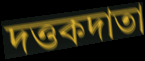
দত্তকদাতা